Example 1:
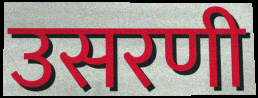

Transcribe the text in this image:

उसरणी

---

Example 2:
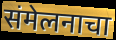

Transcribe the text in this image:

संमेलनाचा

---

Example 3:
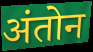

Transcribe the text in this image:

अंतोन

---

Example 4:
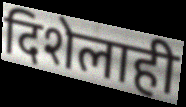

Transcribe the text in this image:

दिशेलाही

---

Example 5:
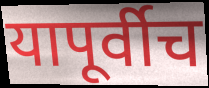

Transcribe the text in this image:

यापूर्वीच